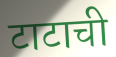
टाटाची